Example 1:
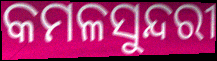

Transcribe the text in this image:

କମଳସୁନ୍ଦରୀ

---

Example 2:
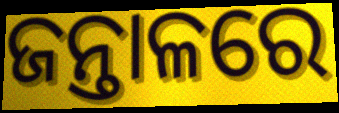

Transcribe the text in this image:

ଜନ୍ତାଳରେ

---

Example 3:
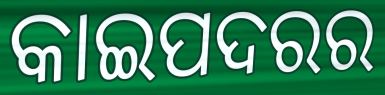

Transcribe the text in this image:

କାଇପଦରର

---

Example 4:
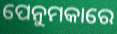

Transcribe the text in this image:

ପେନୁମକାରେ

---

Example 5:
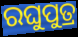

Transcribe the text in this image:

ରଘୁପୁତ୍ର